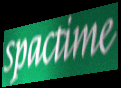
spactime